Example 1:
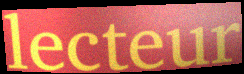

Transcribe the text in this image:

lecteur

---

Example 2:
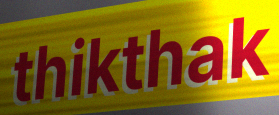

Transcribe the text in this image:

thikthak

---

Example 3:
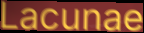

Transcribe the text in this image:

Lacunae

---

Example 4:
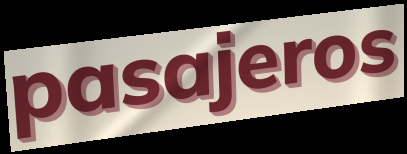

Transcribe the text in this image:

pasajeros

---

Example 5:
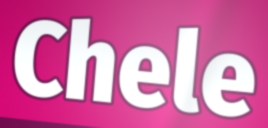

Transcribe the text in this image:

Chele